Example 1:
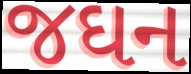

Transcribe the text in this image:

જઘન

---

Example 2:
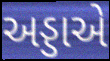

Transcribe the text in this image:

અડ્ડાએ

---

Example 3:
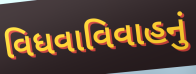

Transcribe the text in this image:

વિધવાવિવાહનું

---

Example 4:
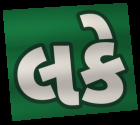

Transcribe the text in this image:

લકે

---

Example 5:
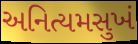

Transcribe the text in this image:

અનિત્યમસુખં